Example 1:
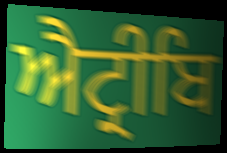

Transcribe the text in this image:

ਐਟ੍ਰੀਬਿ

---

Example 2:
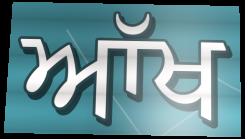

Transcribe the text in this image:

ਆੱਖ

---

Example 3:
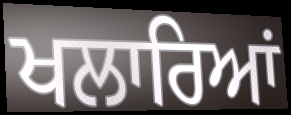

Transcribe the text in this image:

ਖਲਾਰਿਆਂ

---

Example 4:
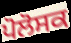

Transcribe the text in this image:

ਪੋਲੋਸਕ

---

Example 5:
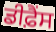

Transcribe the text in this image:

ਡੀਫ਼ੈਂਸ